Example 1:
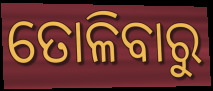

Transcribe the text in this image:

ତୋଳିବାରୁ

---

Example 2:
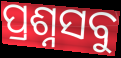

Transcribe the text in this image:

ପ୍ରଶ୍ନସବୁ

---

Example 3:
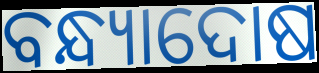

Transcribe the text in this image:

ବନ୍ଧ୍ୟାଦୋଷ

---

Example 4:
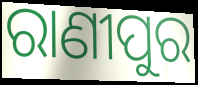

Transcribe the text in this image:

ରାଣୀପୁର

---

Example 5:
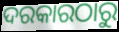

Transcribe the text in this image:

ଦରକାରଠାରୁ